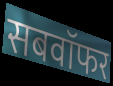
सबवॉफर